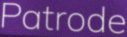
Patrode